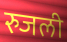
रुजली